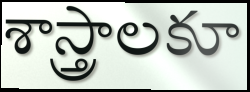
శాస్త్రాలకూ